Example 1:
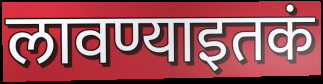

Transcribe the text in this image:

लावण्याइतकं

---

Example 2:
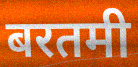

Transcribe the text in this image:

बरतमी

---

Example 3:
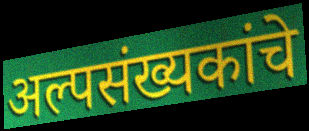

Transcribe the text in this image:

अल्पसंख्यकांचे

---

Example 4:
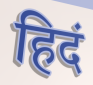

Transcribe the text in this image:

हिदं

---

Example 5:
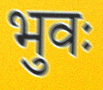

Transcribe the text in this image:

भुवः